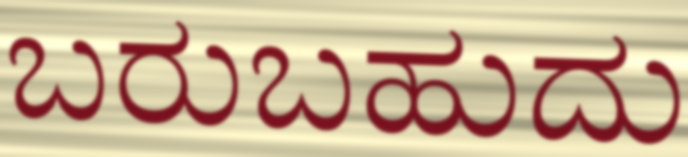
ಬರುಬಹುದು